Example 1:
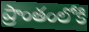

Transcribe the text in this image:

ప్రాంతంలోకి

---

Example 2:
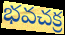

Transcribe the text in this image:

భవచక్ర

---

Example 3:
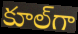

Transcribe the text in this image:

కూల్‌గా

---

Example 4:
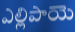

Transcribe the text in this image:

ఎల్లిపాయె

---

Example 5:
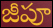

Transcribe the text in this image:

జీపూ